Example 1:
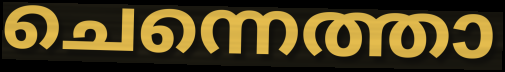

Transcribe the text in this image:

ചെന്നെത്താ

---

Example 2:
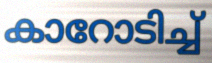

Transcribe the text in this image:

കാറോടിച്ച്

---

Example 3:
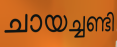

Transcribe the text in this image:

ചായച്ചണ്ടി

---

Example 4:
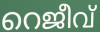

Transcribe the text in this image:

റെജീവ്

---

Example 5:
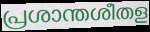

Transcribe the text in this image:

പ്രശാന്തശീതള